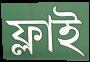
ফ্লাই